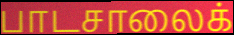
பாடசாலைக்